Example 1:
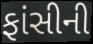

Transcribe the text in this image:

ફાંસીની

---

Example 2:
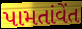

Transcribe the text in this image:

પામતાંવેંત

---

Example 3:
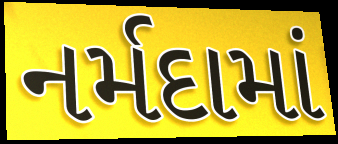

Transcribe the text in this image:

નર્મદામાં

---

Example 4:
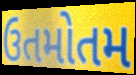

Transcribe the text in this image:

ઉતમોતમ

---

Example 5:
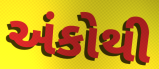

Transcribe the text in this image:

અંકોથી